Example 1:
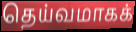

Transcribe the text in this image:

தெய்வமாகக்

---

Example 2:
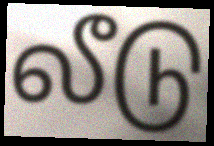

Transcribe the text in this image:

லீடு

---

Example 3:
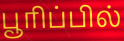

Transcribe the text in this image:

பூரிப்பில்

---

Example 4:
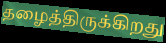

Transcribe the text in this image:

தழைத்திருக்கிறது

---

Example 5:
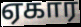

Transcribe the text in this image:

ஏகார